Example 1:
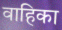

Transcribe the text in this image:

वाहिका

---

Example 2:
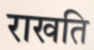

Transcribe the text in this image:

राखति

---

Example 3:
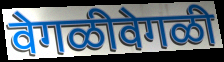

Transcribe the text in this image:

वेगळीवेगळी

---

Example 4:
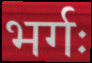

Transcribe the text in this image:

भर्गः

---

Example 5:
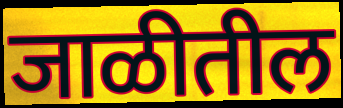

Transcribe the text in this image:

जाळीतील